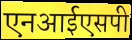
एनआईएसपी